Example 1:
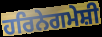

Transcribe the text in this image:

ਹਰਿਨੇਗਮੇਸ਼ੀ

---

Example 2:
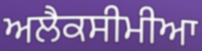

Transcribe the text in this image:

ਅਲੈਕਸੀਮੀਆ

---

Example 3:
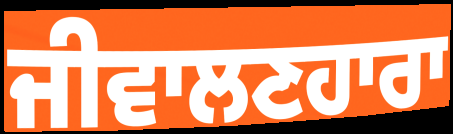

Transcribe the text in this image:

ਜੀਵਾਲਣਹਾਰਾ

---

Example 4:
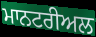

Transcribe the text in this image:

ਮਾਨਟਰੀਅਲ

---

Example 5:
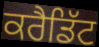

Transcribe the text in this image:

ਕਰੈਡਿੱਟ